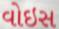
વોઇસ